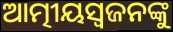
ଆତ୍ମୀୟସ୍ୱଜନଙ୍କୁ